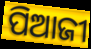
ପିଆଜୀ